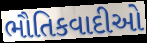
ભૌતિકવાદીઓ